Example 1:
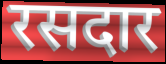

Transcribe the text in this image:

रसदार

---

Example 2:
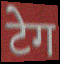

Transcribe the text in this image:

टेग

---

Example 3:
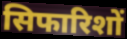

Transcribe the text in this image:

सिफारिशों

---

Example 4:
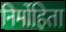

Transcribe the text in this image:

निर्मोहिता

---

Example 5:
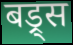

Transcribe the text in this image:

बड्र्स